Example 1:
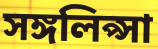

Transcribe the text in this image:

সঙ্গলিপ্সা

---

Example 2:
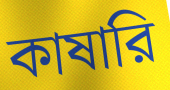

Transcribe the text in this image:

কাষারি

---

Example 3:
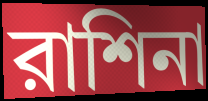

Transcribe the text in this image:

রাশিনা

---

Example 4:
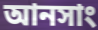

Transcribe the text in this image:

আনসাং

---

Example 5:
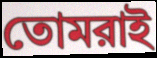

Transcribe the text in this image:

তোমরাই